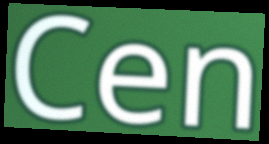
Cen